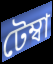
টেম্বা